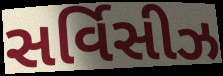
સર્વિસીઝ